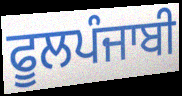
ਫੂਲਪੰਜਾਬੀ